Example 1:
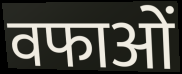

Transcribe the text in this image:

वफाओं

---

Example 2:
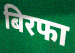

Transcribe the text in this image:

बिरफा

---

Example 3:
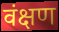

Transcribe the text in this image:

वंक्षण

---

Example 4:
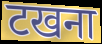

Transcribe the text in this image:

टखना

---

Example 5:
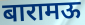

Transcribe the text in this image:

बारामऊ